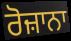
ਰੋਜ਼ਾਨਾ